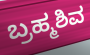
ಬ್ರಹ್ಮಶಿವ